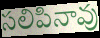
సలిపినావు